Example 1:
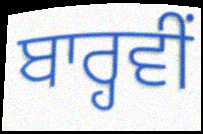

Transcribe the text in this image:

ਬਾਰ੍ਹਵੀਂ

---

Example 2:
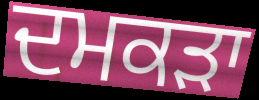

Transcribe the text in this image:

ਦਮਕੜਾ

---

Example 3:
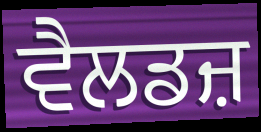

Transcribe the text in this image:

ਵੈਲਡਜ਼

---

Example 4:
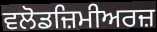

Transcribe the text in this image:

ਵਲੋਡਜ਼ਿਮੀਅਰਜ਼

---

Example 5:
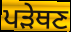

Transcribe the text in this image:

ਪੜੇਥਣ